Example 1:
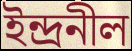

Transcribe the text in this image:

ইন্দ্ৰনীল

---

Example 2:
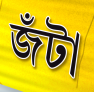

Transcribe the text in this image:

জঁটা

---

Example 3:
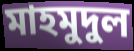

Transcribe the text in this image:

মাহমুদুল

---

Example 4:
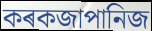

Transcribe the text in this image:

কৰকজাপানিজ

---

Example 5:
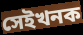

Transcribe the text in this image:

সেইখনক